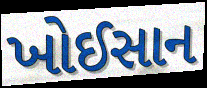
ખોઈસાન